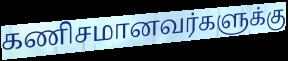
கணிசமானவர்களுக்கு